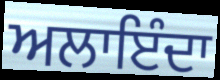
ਅਲਾਇੰਦਾ